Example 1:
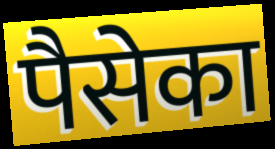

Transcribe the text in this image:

पैसेका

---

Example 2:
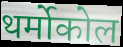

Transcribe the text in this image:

थर्मोकोल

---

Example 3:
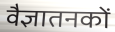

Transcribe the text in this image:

वैज्ञातनकों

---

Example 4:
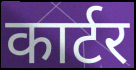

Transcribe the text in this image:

कार्टर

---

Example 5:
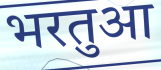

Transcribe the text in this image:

भरतुआ